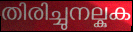
തിരിച്ചുനല്കുക